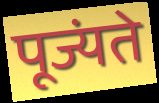
पूज्यंते